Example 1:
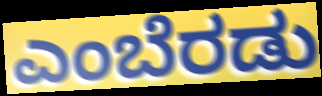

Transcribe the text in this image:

ಎಂಬೆರಡು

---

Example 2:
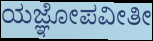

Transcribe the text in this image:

ಯಜ್ಞೋಪವೀತೀ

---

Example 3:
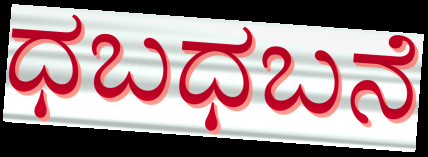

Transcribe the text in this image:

ಧಬಧಬನೆ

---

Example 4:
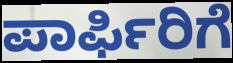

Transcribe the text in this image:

ಪಾರ್ಫಿರಿಗೆ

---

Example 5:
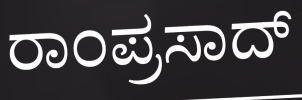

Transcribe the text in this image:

ರಾಂಪ್ರಸಾದ್